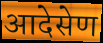
आदेसेण